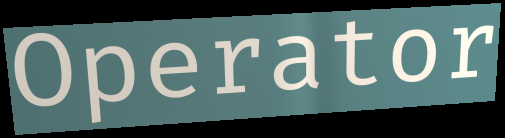
Operator